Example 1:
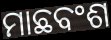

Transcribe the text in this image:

ମାଛବଂଶ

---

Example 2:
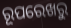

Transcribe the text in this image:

ରୂପରେଖରୁ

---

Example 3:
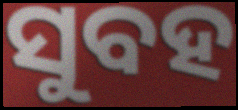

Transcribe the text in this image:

ସୁବହ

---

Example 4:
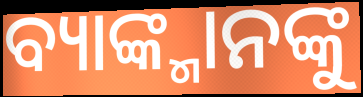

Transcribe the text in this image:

ବ୍ୟାଙ୍କ୍ମାନଙ୍କୁ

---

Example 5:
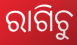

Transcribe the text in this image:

ରାଗିଚୁ